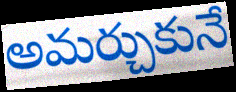
అమర్చుకునే